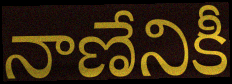
నాణేనికీ